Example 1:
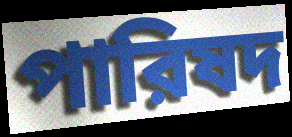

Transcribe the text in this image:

পারিষদ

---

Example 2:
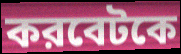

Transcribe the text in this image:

করবেটকে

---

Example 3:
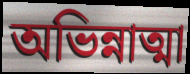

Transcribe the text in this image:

অভিন্নাত্মা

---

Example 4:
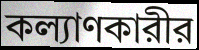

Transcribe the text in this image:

কল্যাণকারীর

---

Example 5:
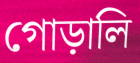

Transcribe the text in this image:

গোড়ালি